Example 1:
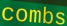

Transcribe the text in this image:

combs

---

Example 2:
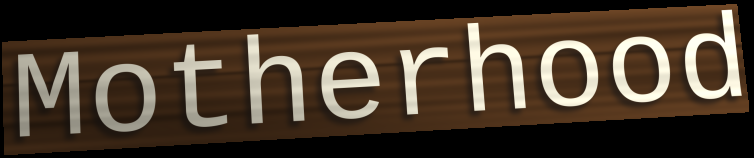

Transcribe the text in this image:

Motherhood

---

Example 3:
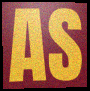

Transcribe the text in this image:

AS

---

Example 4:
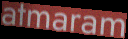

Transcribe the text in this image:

atmaram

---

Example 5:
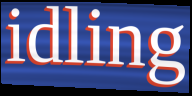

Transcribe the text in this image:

idling